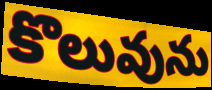
కొలువును